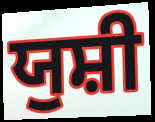
ਯੁਸ਼ੀ